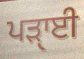
ਪੜਾੑਈ